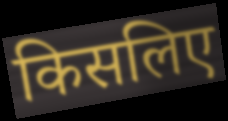
किसलिए